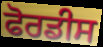
ਫੋਰਡੀਸ